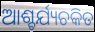
ଆଶ୍ଚର୍ଯ୍ୟଚକିତ